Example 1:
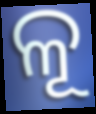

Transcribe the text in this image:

ଳୂ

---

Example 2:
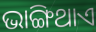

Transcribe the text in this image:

ଭାଙ୍ଗିଥାଏ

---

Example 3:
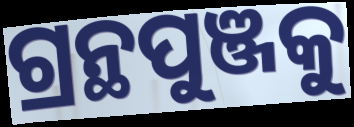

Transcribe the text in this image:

ଗ୍ରନ୍ଥପୁଞ୍ଜକୁ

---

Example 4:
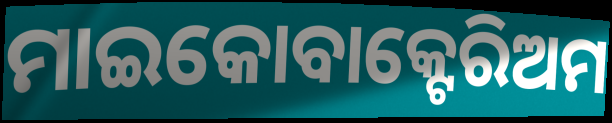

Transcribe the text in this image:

ମାଇକୋବାକ୍ଟେରିଅମ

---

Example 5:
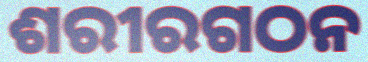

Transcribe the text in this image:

ଶରୀରଗଠନ